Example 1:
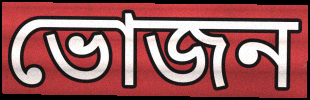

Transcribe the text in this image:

ভোজন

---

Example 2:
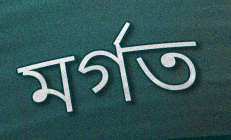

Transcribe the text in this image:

মৰ্গত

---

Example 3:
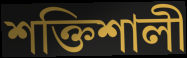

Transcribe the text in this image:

শক্তিশালী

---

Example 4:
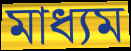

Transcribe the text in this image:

মাধ্যম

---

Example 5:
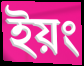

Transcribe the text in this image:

ইয়ং